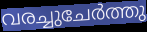
വരച്ചുചേർത്തു